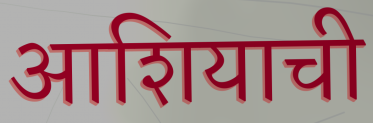
आशियाची